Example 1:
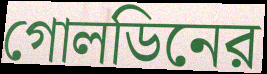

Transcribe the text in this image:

গোলডিনের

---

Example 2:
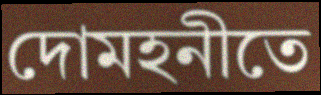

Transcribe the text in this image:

দোমহনীতে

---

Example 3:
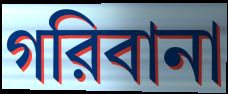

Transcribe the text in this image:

গরিবানা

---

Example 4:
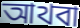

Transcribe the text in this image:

আথবা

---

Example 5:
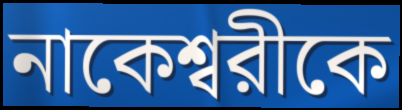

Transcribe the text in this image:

নাকেশ্বরীকে